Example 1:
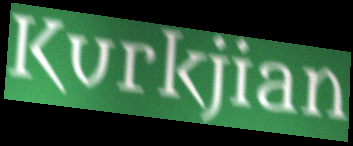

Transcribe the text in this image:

Kurkjian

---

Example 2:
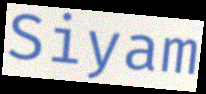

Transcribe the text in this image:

Siyam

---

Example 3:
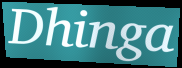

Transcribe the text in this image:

Dhinga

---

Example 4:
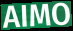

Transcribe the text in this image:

AIMO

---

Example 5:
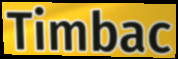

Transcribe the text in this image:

Timbac